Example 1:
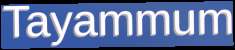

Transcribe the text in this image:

Tayammum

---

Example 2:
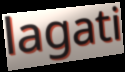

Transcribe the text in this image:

lagati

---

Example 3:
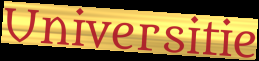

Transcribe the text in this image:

Universitie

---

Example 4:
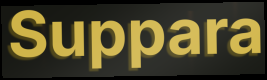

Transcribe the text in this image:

Suppara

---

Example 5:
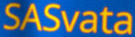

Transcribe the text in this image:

SASvata